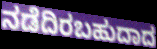
ನಡೆದಿರಬಹುದಾದ